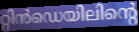
റ്റിൻഡെയിലിന്റെ